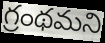
గ్రంథమని